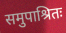
समुपाश्रितः